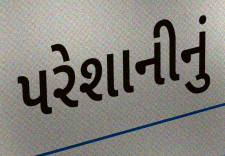
પરેશાનીનું